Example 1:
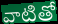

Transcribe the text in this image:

వాటితో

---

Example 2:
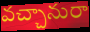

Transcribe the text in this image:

వచ్చానురా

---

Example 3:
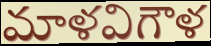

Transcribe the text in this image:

మాళవిగౌళ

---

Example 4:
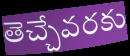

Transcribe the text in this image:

తెచ్చేవరకు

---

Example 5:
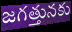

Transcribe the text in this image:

జగత్తునకు